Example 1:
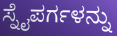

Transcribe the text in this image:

ಸ್ನೈಪರ್ಗಳನ್ನು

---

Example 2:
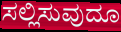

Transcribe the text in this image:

ಸಲ್ಲಿಸುವುದೂ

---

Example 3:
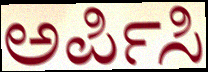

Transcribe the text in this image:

ಅರ್ಪಿಸಿ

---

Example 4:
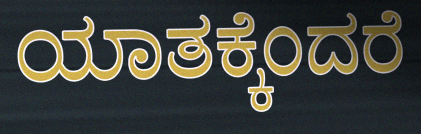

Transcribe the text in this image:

ಯಾತಕ್ಕೆಂದರೆ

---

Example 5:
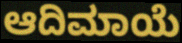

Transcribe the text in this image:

ಆದಿಮಾಯೆ